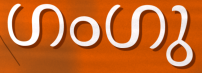
ഗംഗു